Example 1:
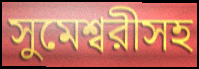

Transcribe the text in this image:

সুমেশ্বরীসহ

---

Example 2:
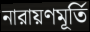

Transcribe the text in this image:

নারায়ণমূর্তি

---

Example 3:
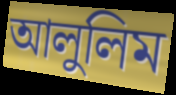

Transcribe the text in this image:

আলুলিম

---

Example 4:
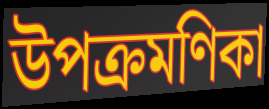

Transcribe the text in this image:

উপক্রমণিকা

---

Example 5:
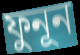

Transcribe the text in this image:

ফুনূন